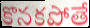
కొనకపోతే